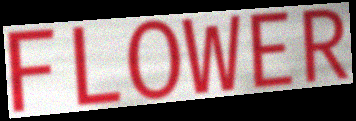
FLOWER